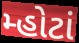
મ્હોટાં